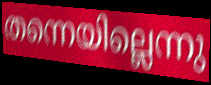
തന്നെയില്ലെന്നു